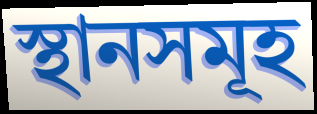
স্থানসমূহ